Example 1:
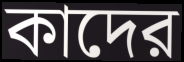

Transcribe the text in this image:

কাদের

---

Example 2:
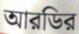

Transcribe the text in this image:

আরডির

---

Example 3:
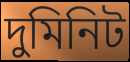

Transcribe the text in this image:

দুমিনিট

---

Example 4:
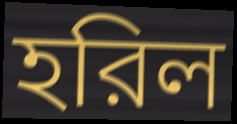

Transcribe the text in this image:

হরিল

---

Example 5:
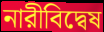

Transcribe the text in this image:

নারীবিদ্বেষ